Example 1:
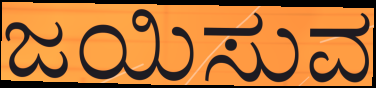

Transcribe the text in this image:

ಜಯಿಸುವ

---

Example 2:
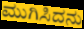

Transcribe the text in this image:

ಮುಗಿಸಿದನು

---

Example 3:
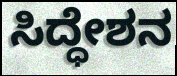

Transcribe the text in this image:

ಸಿದ್ಧೇಶನ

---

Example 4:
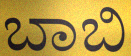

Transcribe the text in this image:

ಬಾಬಿ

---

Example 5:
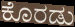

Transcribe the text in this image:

ಕೊರಡು